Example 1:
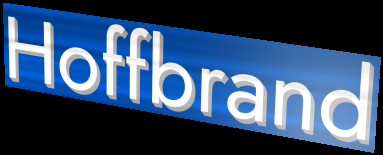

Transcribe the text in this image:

Hoffbrand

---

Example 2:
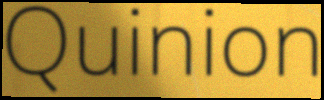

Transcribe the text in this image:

Quinion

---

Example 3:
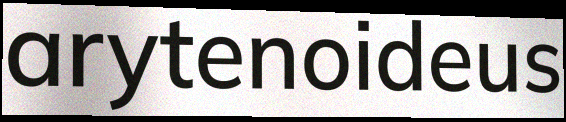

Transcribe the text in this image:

arytenoideus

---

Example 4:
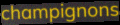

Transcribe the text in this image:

champignons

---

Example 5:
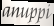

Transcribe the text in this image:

anuppi